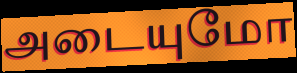
அடையுமோ